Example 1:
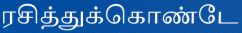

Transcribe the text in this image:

ரசித்துக்கொண்டே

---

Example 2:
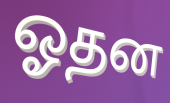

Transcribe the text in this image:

ஓதன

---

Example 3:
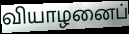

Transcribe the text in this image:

வியாழனைப்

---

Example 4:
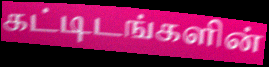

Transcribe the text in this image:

கட்டிடங்களின்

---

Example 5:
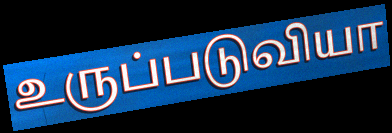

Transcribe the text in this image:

உருப்படுவியா